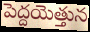
పెద్దయెత్తున